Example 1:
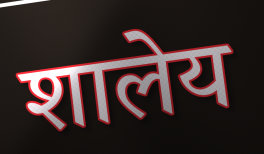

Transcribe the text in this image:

शालेय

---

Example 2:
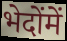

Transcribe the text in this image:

भेदोंमें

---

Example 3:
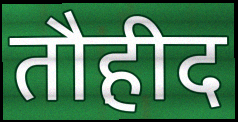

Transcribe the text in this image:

तौह़ीद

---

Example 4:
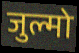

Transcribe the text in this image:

जुल्मो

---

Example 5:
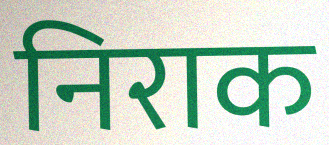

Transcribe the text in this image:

निराक